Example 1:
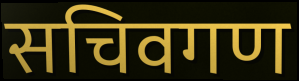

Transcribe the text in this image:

सचिवगण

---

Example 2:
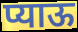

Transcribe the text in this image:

प्याऊ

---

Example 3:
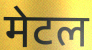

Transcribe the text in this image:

मेटल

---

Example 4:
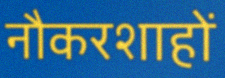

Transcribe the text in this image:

नौकरशाहों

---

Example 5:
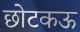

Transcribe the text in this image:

छोटकऊ